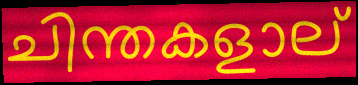
ചിന്തകളാല്